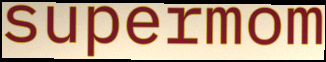
supermom